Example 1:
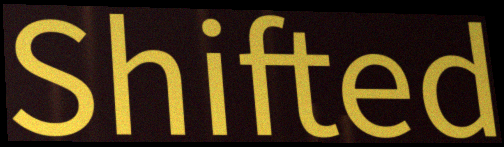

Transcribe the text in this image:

Shifted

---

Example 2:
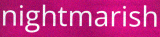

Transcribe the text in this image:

nightmarish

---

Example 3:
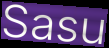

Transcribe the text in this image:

Sasu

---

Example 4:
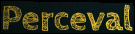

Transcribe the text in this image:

Perceval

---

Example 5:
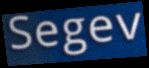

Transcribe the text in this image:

Segev